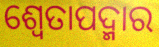
ଶ୍ଵେତାପଦ୍ମାର